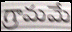
గ్రామమే